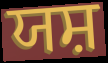
ਯਸ਼